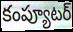
కంప్యూటర్